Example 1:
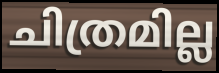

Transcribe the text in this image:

ചിത്രമില്ല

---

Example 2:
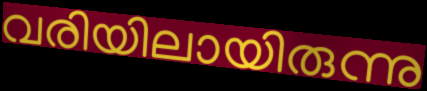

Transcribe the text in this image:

വരിയിലായിരുന്നു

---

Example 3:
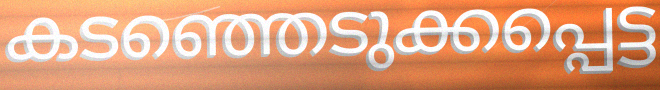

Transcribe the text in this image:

കടഞ്ഞെടുക്കപ്പെട്ട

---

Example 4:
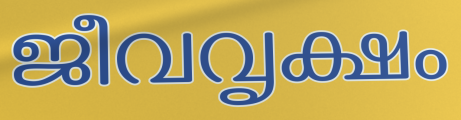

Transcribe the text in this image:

ജീവവൃക്ഷം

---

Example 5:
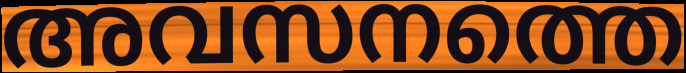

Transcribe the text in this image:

അവസനത്തെ